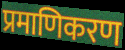
प्रमाणिकरण